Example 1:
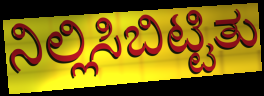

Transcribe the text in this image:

ನಿಲ್ಲಿಸಿಬಿಟ್ಟಿತು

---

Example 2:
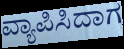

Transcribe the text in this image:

ವ್ಯಾಪಿಸಿದಾಗ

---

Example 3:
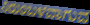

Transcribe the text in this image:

ನಿರುಂಬಳವಾಗುವ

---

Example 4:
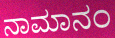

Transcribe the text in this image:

ನಾಮಾನಂ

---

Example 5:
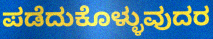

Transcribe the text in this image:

ಪಡೆದುಕೊಳ್ಳುವುದರ